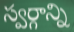
స్వర్గాన్ని